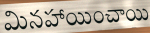
మినహాయించాయి